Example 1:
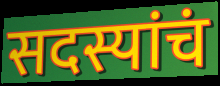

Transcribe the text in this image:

सदस्यांचं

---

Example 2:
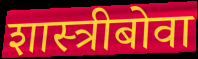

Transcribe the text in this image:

शास्त्रीबोवा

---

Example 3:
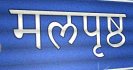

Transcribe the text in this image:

मलपृष्ठ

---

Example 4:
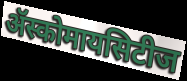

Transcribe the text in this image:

ॲस्कोमायसिटीज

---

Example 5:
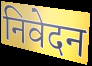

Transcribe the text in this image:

निवेदन